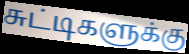
சுட்டிகளுக்கு